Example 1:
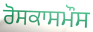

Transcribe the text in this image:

ਰੋਸਕਾਸਮੌਸ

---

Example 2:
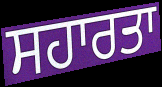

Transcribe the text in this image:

ਸਹਾਰਤਾ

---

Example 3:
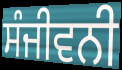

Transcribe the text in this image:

ਸੰਜੀਵਨੀ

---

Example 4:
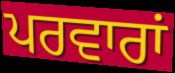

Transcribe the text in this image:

ਪਰਵਾਰਾਂ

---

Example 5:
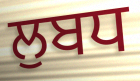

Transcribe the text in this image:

ਲੁਬਧ